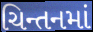
ચિન્તનમાં